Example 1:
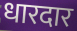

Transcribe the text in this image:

धारदार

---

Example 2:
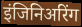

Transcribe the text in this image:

इंजिनिअरिंग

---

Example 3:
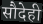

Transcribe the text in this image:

सौदेही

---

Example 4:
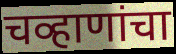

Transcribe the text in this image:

चव्हाणांचा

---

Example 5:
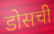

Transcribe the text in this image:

डोसची